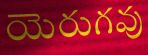
యెరుగవు